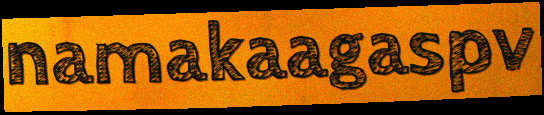
namakaagaspv